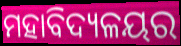
ମହାବିଦ୍ୟଳୟର